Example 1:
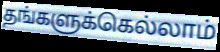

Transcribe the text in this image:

தங்களுக்கெல்லாம்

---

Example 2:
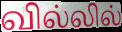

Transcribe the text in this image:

வில்லில்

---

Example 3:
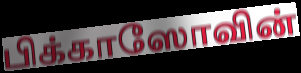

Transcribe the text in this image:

பிக்காஸோவின்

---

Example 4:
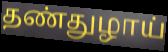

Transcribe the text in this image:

தண்துழாய்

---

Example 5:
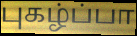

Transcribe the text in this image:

புகழ்ப்பா